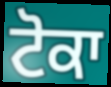
ਟੋਕਾ